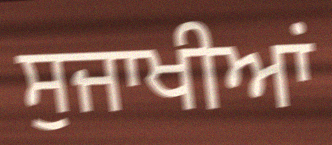
ਸੁਜਾਖੀਆਂ